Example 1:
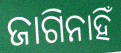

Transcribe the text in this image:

ଜାଗିନାହିଁ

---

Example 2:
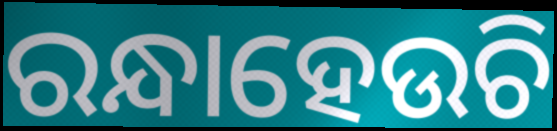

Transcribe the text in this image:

ରନ୍ଧାହେଉଚି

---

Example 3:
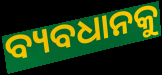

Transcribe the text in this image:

ବ୍ୟବଧାନକୁ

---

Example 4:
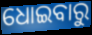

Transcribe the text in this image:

ଧୋଇବାରୁ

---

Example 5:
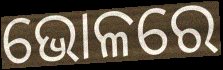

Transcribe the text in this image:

ଭୋଳରେ